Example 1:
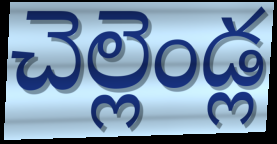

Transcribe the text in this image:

చెల్లెండ్ల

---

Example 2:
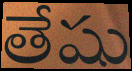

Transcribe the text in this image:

తేషు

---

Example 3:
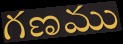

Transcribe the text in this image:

గణము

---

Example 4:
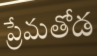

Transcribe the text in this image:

ప్రేమతోడ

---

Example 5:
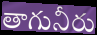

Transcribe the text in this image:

తాగునీరు